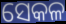
ସେକଳ